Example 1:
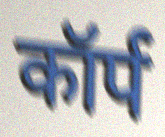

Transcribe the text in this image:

कॉर्प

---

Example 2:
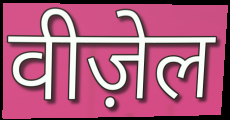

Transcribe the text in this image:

वीज़ेल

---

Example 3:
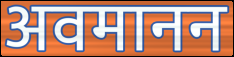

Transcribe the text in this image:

अवमानन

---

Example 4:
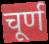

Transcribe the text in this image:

चूर्ण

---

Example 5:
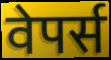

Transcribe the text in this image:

वेपर्स